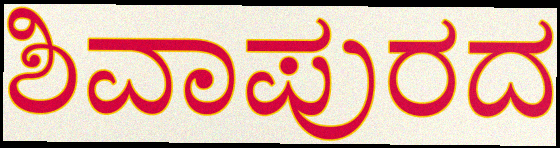
ಶಿವಾಪುರದ